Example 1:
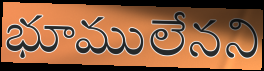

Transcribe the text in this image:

భూములేనని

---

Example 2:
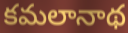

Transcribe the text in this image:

కమలానాథ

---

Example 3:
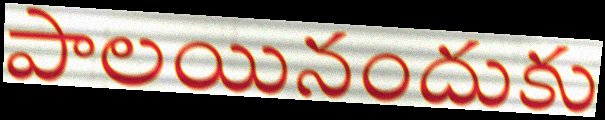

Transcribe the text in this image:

పాలయినందుకు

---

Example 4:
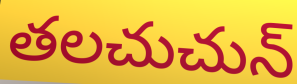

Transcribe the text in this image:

తలచుచున్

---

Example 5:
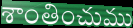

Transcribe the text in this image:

శాంతించుము